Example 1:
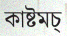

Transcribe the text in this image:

কাষ্টমচ্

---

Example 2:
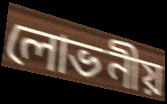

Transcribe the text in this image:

লোভনীয়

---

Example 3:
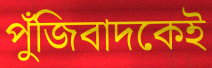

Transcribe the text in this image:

পুঁজিবাদকেই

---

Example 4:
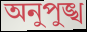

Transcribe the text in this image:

অনুপুঙ্খ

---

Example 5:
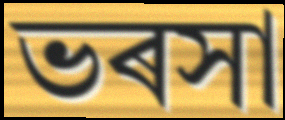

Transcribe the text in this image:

ভৰসা